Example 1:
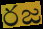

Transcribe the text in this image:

రజ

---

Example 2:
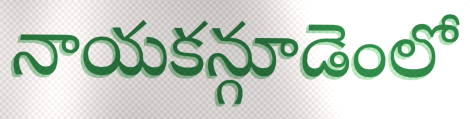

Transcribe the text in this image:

నాయకన్గూడెంలో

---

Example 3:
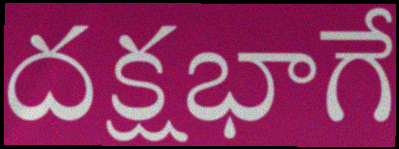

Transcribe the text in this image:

దక్షభాగే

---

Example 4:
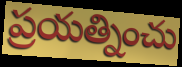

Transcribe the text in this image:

ప్రయత్నించు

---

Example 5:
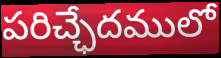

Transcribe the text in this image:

పరిచ్ఛేదములో